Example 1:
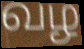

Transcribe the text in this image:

வழ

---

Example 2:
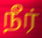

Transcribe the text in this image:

நீர்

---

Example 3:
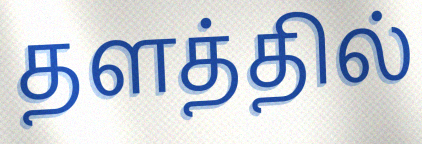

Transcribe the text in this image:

தளத்தில்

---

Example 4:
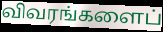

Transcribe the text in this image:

விவரங்களைப்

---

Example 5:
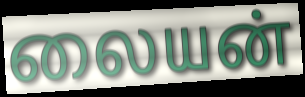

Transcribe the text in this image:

லையன்